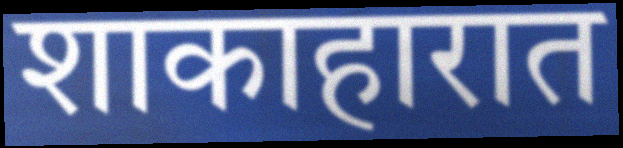
शाकाहारात